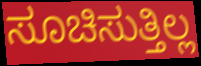
ಸೂಚಿಸುತ್ತಿಲ್ಲ